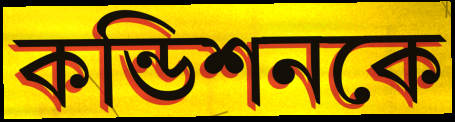
কন্ডিশনকে